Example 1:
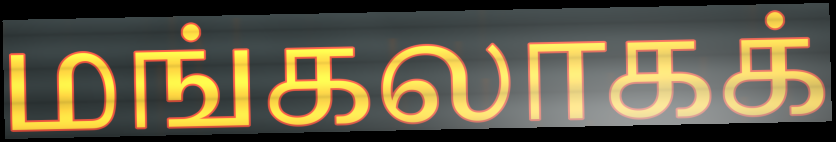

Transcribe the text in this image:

மங்கலாகக்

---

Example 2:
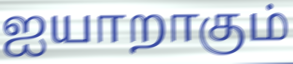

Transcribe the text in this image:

ஐயாறாகும்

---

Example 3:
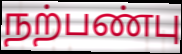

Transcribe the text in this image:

நற்பண்பு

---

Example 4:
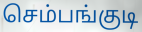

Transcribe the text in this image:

செம்பங்குடி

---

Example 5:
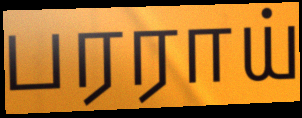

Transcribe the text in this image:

பரராய்